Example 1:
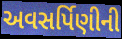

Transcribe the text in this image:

અવસર્પિણીની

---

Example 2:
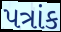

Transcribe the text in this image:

પત્રાંક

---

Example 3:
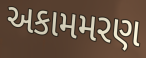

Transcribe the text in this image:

અકામમરણ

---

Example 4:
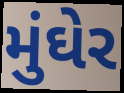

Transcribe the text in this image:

મુંઘેર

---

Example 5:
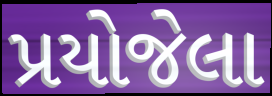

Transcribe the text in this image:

પ્રયોજેલા